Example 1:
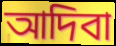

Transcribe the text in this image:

আদিবা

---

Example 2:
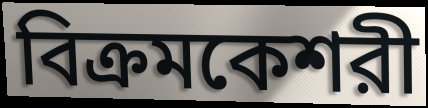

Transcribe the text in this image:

বিক্রমকেশরী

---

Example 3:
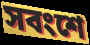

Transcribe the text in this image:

সবংশে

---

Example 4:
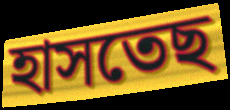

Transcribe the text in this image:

হাসতেছ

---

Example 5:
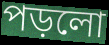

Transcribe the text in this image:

পড়লো